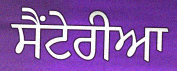
ਸੈਂਟੇਰੀਆ